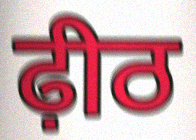
ढ़ीठ